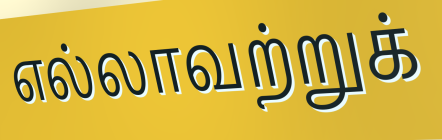
எல்லாவற்றுக்